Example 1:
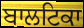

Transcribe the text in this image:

ਬਾਲਟਿਕਾ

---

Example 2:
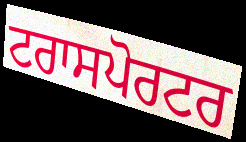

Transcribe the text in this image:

ਟਰਾਸਪੋਰਟਰ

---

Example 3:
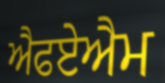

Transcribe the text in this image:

ਐਫਏਐਮ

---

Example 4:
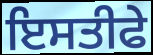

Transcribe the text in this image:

ਇਸਤੀਫੇ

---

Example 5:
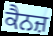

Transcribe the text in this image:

ਕੈਨਜ਼